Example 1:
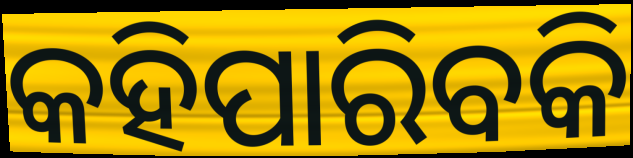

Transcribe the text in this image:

କହିପାରିବକି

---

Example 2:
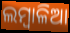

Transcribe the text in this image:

ଲମ୍ବାଳିଆ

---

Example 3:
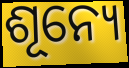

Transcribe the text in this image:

ଶୂନ୍ୟେ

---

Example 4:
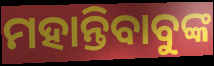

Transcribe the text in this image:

ମହାନ୍ତିବାବୁଙ୍କ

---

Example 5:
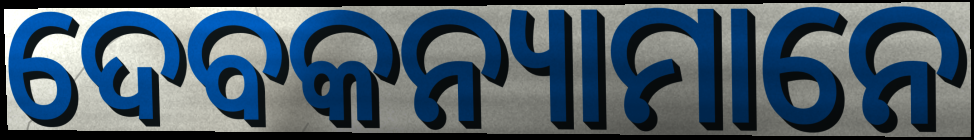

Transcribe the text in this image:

ଦେବକନ୍ୟାମାନେ